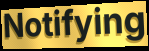
Notifying